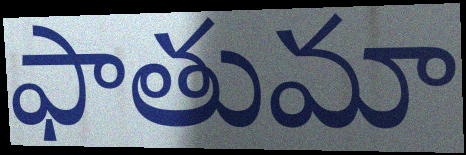
ఫాతుమా